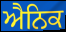
ਐਨਿਕ